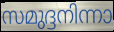
സമുദ്ദനിന്നാ